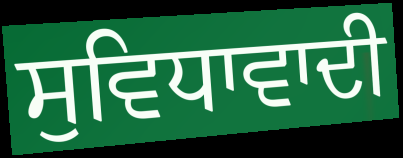
ਸੁਵਿਧਾਵਾਦੀ